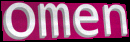
omen